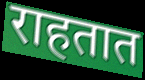
राहतात